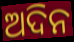
ଅଦିନ